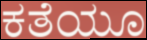
ಕತೆಯೂ